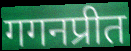
गगनप्रीत